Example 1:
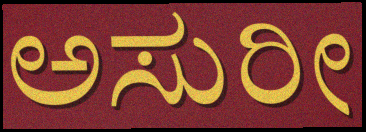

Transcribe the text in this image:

ಅಸುರೀ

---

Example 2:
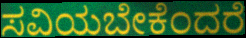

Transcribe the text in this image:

ಸವಿಯಬೇಕೆಂದರೆ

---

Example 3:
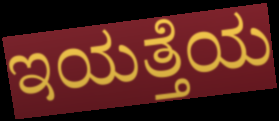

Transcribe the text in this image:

ಇಯತ್ತೆಯ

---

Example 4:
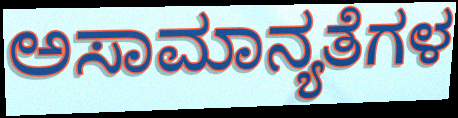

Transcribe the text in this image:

ಅಸಾಮಾನ್ಯತೆಗಳ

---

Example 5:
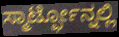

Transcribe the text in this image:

ಸ್ಮಾರ್ಟ್ಫೋನ್ನಲ್ಲಿ